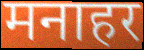
मनाहर